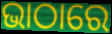
ଭାଠାରେ